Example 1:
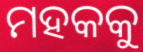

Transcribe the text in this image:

ମହକକୁ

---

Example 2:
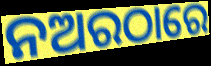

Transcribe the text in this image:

ନଅରଠାରେ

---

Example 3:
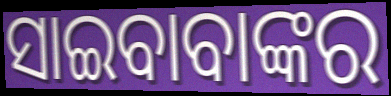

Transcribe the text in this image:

ସାଇବାବାଙ୍କର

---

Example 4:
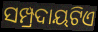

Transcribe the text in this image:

ସମ୍ପ୍ରଦାୟଟିଏ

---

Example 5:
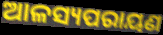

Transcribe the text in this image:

ଆଳସ୍ୟପରାୟଣ